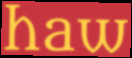
haw